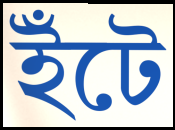
ইঁটে